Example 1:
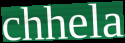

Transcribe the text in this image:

chhela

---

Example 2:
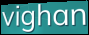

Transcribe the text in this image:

vighan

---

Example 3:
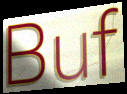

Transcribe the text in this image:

Buf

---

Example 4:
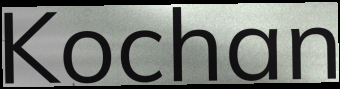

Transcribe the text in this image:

Kochan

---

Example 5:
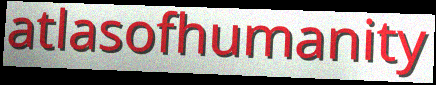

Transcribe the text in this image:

atlasofhumanity